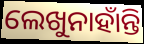
ଲେଖୁନାହାଁନ୍ତି